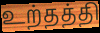
உற்தத்தி